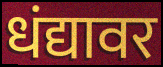
धंद्यावर